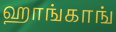
ஹாங்காங்